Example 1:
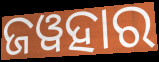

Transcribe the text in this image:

ଜୱହାର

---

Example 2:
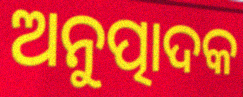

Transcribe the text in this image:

ଅନୁତ୍ପାଦକ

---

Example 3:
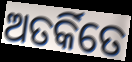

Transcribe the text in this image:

ଅତର୍କିତେ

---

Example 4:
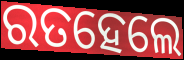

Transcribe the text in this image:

ରତହେଲେ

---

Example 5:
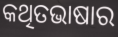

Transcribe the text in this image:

କଥିତଭାଷାର